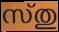
സ്‌തു